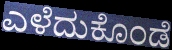
ಎಳೆದುಕೊಂಡೆ